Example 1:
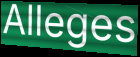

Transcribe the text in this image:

Alleges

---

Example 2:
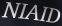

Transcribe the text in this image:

NIAID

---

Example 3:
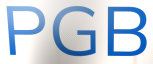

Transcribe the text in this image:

PGB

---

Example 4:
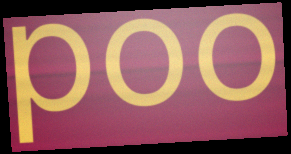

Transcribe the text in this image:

poo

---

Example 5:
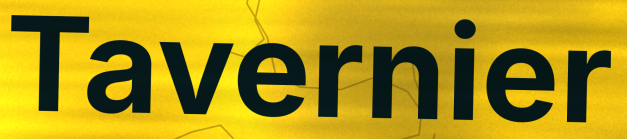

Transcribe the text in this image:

Tavernier